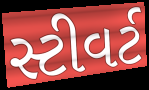
સ્ટીવર્ટ